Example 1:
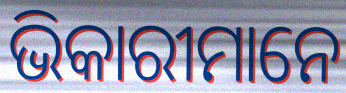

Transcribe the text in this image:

ଭିକାରୀମାନେ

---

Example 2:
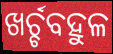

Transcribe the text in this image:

ଖର୍ଚ୍ଚବହୁଳ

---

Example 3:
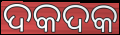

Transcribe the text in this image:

ଦକଦକ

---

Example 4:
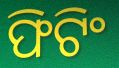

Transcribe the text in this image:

ଫିଟିଂ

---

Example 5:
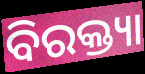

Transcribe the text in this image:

ବିରକ୍ତ୍ୟା